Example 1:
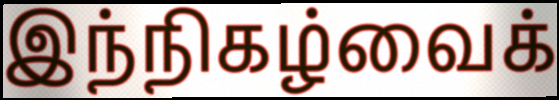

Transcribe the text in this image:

இந்நிகழ்வைக்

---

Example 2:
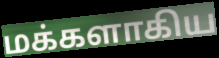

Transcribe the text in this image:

மக்களாகிய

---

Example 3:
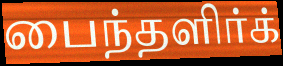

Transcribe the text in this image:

பைந்தளிர்க்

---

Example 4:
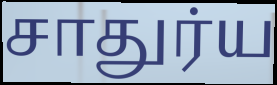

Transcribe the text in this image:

சாதுர்ய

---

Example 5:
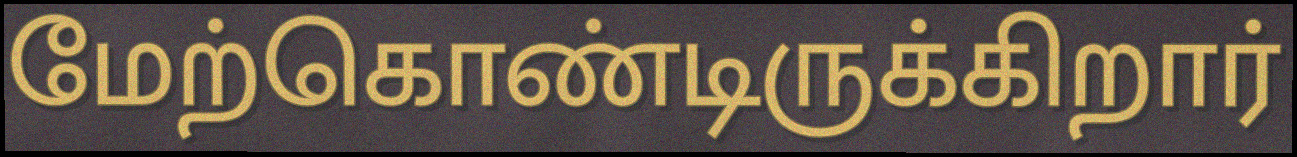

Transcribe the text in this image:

மேற்கொண்டிருக்கிறார்